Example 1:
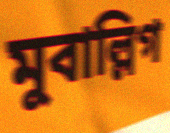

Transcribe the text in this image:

মুবাল্লিগ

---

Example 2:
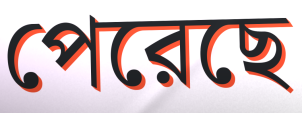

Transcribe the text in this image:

পেরেছে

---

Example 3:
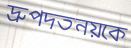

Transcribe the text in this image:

দ্রুপদতনয়কে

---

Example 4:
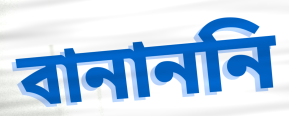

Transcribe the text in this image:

বানাননি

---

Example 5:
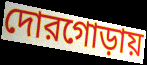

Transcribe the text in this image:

দোরগোড়ায়